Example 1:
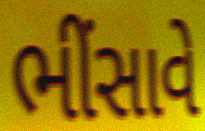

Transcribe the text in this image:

ભીંસાવે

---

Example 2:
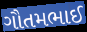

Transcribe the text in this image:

ગૌતમભાઈ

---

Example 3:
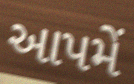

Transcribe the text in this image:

આપમેં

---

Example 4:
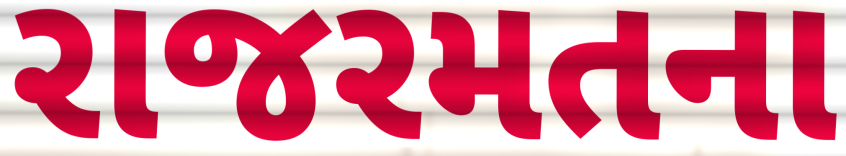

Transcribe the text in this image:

રાજરમતના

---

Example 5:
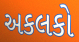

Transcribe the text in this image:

અકલકો